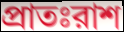
প্রাতঃরাশ